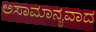
ಅಸಾಮಾನ್ಯವಾದ